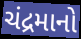
ચંદ્રમાનો